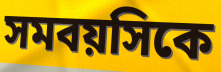
সমবয়সিকে